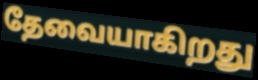
தேவையாகிறது